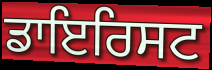
ਡਾਇਰਿਸਟ